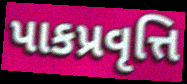
પાકપ્રવૃત્તિ